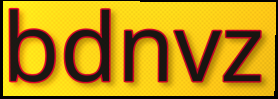
bdnvz